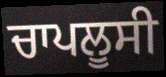
ਚਾਪਲੂਸੀ